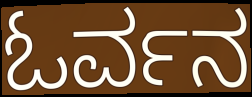
ಓರ್ವನ